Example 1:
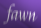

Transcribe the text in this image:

fawn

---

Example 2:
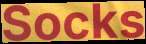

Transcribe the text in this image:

Socks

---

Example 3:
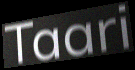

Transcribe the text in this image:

Taari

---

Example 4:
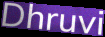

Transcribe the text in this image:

Dhruvi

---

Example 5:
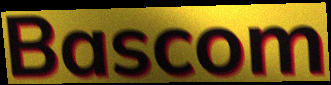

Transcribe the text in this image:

Bascom